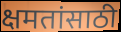
क्षमतांसाठी